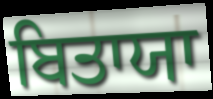
ਬਿਤਾਯਾ